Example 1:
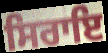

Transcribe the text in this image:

ਸਿਰਾਇ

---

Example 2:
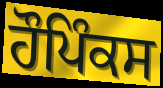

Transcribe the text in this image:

ਹੌਪਿੰਕਸ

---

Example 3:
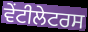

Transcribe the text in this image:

ਵੇਂਟੀਲੇਟਰਸ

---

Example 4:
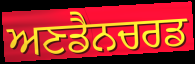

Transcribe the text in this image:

ਅਣਡੈਨਚਰਡ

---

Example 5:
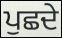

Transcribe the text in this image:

ਪੁਛਦੇ